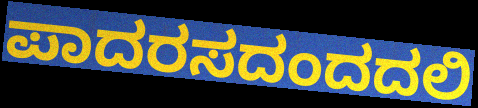
ಪಾದರಸದಂದದಲಿ